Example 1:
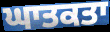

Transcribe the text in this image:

ਘਾਤਕਤਾ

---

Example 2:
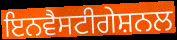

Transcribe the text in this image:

ਇਨਵੈਸਟੀਗੇਸ਼ਨਲ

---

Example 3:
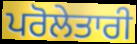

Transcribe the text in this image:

ਪਰੋਲੇਤਾਰੀ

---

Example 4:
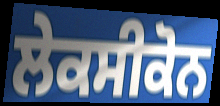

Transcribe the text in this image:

ਲੇਕਸੀਕੋਨ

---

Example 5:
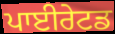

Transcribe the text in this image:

ਪਾਈਰੇਟਡ